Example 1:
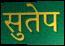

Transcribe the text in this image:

सुतेप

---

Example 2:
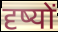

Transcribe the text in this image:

दृष्यों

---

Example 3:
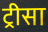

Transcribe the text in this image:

ट्रीसा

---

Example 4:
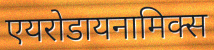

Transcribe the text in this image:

एयरोडायनामिक्स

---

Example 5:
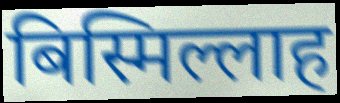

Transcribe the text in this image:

बिस्मिल्लाह